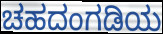
ಚಹದಂಗಡಿಯ